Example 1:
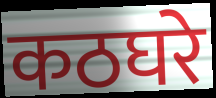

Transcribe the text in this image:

कठघरे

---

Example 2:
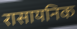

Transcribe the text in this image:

रासायनिक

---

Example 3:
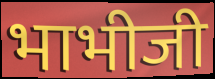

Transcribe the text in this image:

भाभीजी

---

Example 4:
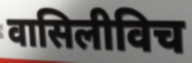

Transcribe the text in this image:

वासिलीविच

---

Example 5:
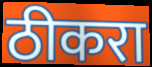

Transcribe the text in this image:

ठीकरा